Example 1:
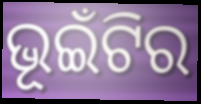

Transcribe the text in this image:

ଭୂଇଁଟିର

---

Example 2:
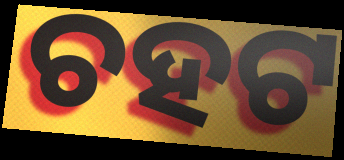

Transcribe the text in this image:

ଚହଟ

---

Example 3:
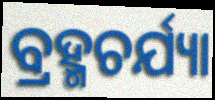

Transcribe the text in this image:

ବ୍ରହ୍ମଚର୍ଯ୍ୟା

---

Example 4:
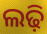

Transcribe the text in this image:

ଲଢ଼ି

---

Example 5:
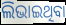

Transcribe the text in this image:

ଲିଭାଇଥିବା